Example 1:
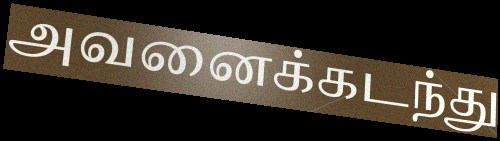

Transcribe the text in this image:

அவனைக்கடந்து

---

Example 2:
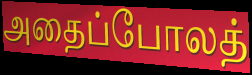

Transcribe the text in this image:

அதைப்போலத்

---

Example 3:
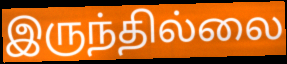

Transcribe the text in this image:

இருந்தில்லை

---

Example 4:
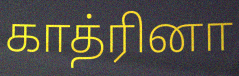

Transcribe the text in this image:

காத்ரினா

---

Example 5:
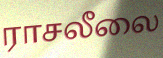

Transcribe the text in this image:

ராசலீலை